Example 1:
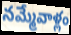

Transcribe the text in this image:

నమ్మేవాళ్లం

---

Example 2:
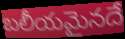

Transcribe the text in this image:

బలీయమైనదే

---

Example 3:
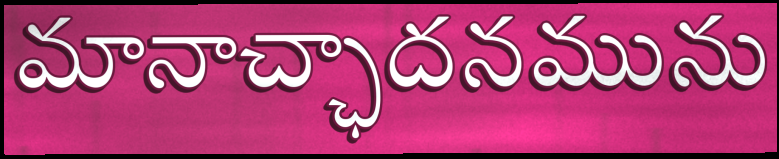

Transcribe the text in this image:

మానాచ్ఛాదనమును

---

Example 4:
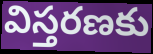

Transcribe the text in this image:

విస్తరణకు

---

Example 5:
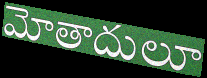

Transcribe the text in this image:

మోతాదులూ